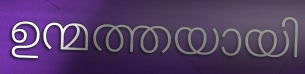
ഉന്മത്തയായി